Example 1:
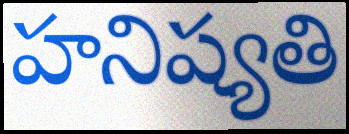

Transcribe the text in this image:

హనిష్యతి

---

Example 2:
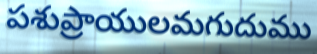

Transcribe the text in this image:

పశుప్రాయులమగుదుము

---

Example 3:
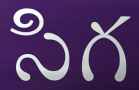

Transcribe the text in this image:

సిగ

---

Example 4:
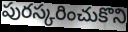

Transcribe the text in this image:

పురస్కరించుకొని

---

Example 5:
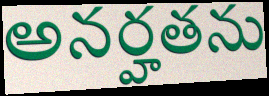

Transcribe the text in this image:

అనర్హతను